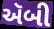
ઍબી